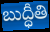
బుద్ధీతి